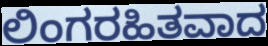
ಲಿಂಗರಹಿತವಾದ